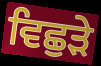
ਵਿਛੁੜੇ